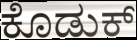
ಕೊಡುಕ್